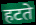
हटते